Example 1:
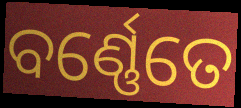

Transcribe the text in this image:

ବର୍ଣ୍ଣେତେ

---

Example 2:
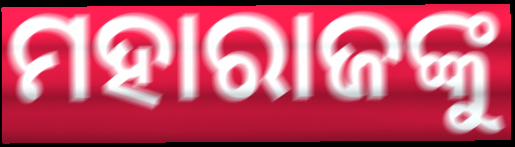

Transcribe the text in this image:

ମହାରାଜଙ୍କୁ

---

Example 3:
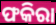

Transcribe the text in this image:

ଫକିରା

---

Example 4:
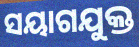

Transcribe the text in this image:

ସୟାଗଯୁକ୍ତ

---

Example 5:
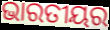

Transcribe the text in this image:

ଭାରତୀୟର